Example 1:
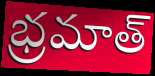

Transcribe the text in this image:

భ్రమాత్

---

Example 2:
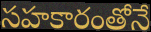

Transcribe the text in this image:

సహకారంతోనే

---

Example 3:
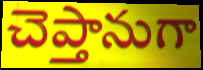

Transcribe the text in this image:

చెప్తానుగా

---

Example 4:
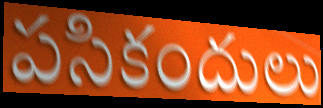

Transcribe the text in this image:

పసికందులు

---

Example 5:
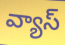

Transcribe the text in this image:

వ్యాస్